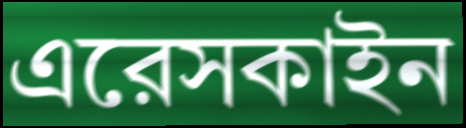
এরেসকাইন